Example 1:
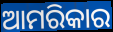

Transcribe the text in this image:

ଆମରିକାର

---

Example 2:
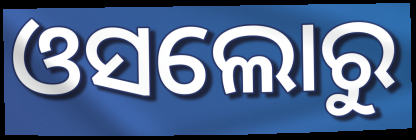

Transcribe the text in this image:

ଓସଲୋରୁ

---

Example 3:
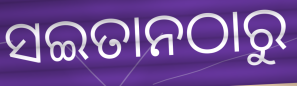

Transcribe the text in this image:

ସଇତାନଠାରୁ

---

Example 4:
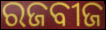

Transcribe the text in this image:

ରଜବୀଜ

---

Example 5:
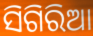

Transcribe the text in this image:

ସିଗିରିଆ